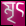
মৃৎ